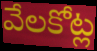
వేలకోట్ల